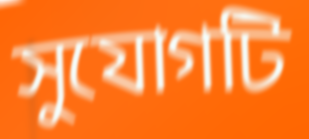
সুযোগটি